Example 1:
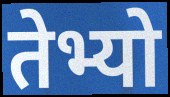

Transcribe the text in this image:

तेभ्यो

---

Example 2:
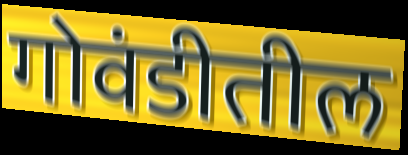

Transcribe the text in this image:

गोवंडीतील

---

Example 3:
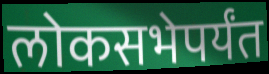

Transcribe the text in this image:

लोकसभेपर्यंत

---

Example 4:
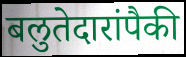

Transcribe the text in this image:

बलुतेदारांपैकी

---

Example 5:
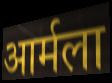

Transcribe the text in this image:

आर्मला